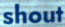
shout